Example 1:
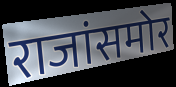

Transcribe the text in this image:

राजांसमोर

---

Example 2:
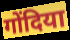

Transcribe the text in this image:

गोंदिया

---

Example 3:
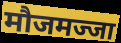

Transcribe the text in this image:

मौजमज्जा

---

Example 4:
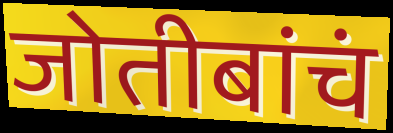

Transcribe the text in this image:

जोतीबांचं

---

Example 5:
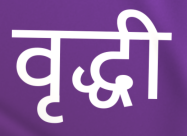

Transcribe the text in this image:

वृद्धी